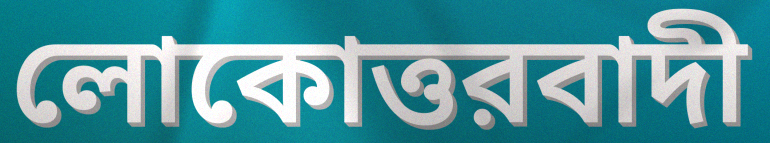
লোকোত্তরবাদী